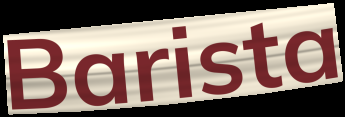
Barista